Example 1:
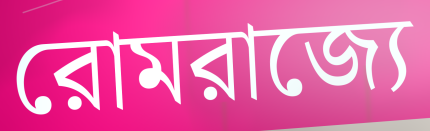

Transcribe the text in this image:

রোমরাজ্যে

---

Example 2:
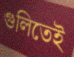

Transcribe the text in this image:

গুলিতেই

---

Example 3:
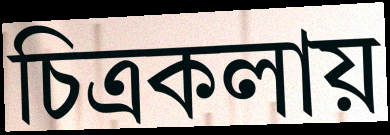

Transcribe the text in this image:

চিত্রকলায়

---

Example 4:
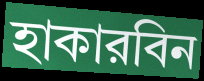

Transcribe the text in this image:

হাকারবিন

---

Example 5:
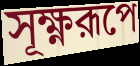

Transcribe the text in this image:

সূক্ষ্ণরূপে